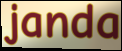
janda